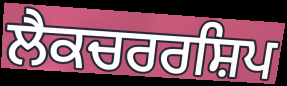
ਲੈਕਚਰਰਸ਼ਿਪ